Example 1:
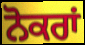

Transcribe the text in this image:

ਨੋਕਰਾਂ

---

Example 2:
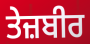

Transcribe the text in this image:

ਤੇਜ਼ਬੀਰ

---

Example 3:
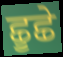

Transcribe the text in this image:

ਛੂਛੇ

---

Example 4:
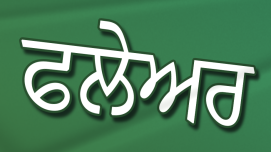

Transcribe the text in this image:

ਫਲੇਅਰ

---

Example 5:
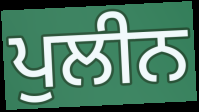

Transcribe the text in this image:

ਪੁਲੀਨ